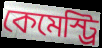
কেমেস্ট্রি